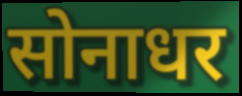
सोनाधर